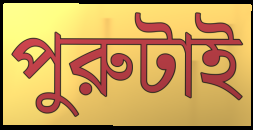
পুরুটাই